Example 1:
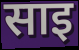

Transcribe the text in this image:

साइ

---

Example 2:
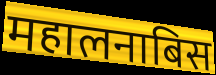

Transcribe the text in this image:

महालनाबिस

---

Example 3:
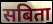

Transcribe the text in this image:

सबिता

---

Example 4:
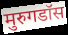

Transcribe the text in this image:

मुरुगडॉस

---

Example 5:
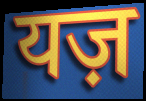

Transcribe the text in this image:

यज़